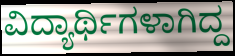
ವಿದ್ಯಾರ್ಥಿಗಳಾಗಿದ್ದ